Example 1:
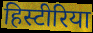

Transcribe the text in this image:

हिस्टीरिया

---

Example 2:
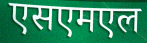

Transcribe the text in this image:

एसएमएल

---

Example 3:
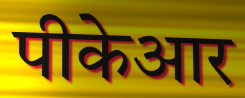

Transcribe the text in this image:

पीकेआर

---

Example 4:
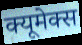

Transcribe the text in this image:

क्यूमेक्स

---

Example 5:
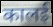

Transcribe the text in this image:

कालई